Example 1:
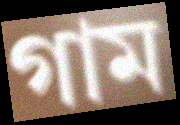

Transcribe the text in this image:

গাম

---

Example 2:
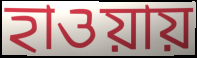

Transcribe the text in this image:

হাওয়ায়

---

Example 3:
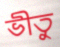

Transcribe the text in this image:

ভীতু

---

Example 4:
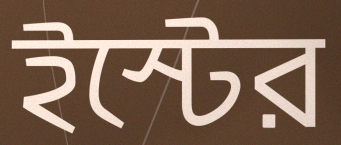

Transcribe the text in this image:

ইস্টের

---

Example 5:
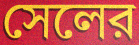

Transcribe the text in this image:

সেলের